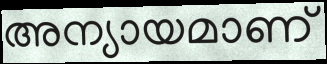
അന്യായമാണ്